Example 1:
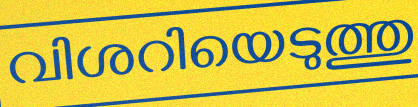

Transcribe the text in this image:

വിശറിയെടുത്തു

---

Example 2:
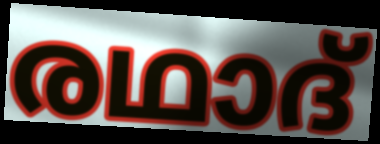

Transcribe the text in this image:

രഥാദ്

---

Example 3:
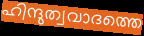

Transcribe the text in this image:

ഹിന്ദുത്വവാദത്തെ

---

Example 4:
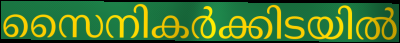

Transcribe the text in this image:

സൈനികർക്കിടയിൽ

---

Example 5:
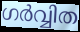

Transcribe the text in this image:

ഗർവ്വിത